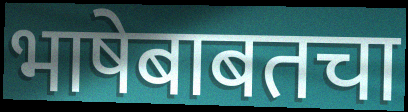
भाषेबाबतचा